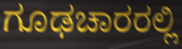
ಗೂಢಚಾರರಲ್ಲಿ